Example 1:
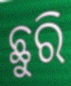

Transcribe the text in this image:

ଛୁରି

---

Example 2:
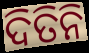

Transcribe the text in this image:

ଦିତିନି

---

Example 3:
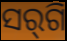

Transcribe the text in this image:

ସର୍‌ଗି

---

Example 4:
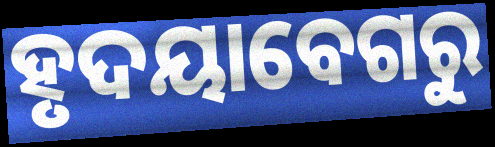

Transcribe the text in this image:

ହୃଦୟାବେଗରୁ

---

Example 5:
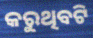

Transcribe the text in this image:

କରୁଥିବଟି